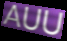
AUU